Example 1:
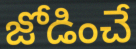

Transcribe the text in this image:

జోడించే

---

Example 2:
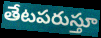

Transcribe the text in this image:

తేటపరుస్తూ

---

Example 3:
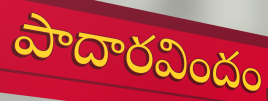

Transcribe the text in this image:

పాదారవిందం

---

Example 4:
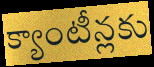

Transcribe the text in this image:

క్యాంటీన్లకు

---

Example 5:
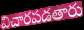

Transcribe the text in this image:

విచారపడతారు